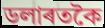
ডলাৰতকৈ